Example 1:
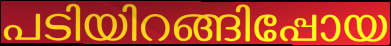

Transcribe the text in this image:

പടിയിറങ്ങിപ്പോയ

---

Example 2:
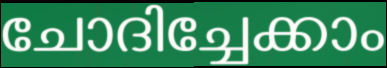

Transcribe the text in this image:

ചോദിച്ചേക്കാം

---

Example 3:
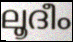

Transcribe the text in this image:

ലൂദീം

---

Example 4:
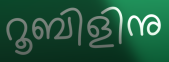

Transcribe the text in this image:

റൂബിളിനു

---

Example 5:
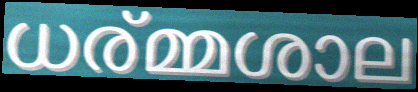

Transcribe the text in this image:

ധര്മ്മശാല